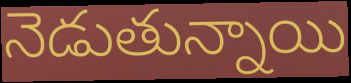
నెడుతున్నాయి